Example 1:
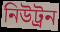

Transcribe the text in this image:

নিউট্ৰন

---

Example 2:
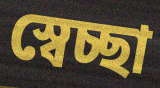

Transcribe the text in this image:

স্বেচ্ছা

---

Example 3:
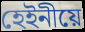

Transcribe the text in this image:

হেইনীয়ে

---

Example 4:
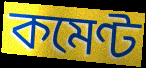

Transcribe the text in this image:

কমেণ্ট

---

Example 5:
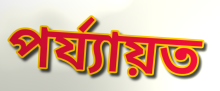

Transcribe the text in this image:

পৰ্য্যায়ত